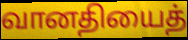
வானதியைத்